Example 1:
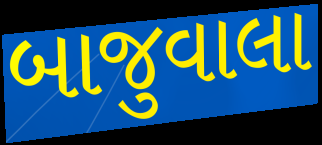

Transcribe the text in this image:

બાજુવાલા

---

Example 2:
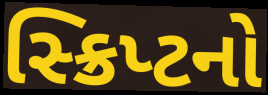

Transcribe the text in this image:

સ્ક્રિપ્ટનો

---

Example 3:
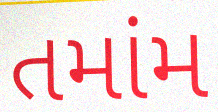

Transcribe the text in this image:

તમાંમ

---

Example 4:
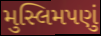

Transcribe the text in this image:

મુસ્લિમપણું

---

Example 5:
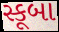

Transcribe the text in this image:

સ્કૂબા